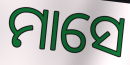
ମାସେ